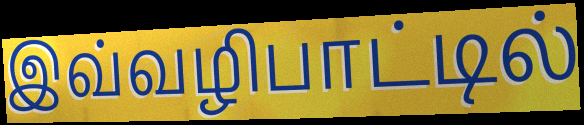
இவ்வழிபாட்டில்